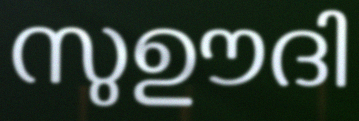
സുഊദി